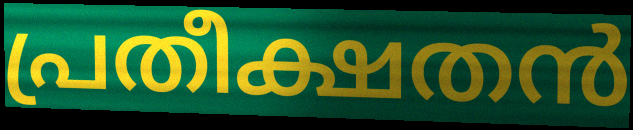
പ്രതീക്ഷതൻ